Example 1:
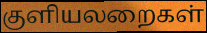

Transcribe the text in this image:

குளியலறைகள்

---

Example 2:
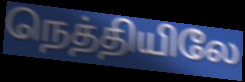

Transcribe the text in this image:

நெத்தியிலே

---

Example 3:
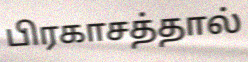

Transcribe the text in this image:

பிரகாசத்தால்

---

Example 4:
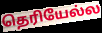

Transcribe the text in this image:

தெரியேல்ல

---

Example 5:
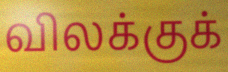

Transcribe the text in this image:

விலக்குக்